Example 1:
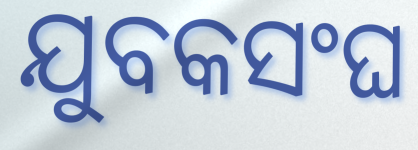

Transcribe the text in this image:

ଯୁବକସଂଘ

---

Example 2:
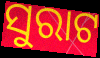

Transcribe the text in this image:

ସୁରାଟ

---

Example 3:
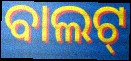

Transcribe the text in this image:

ବାଲଟ୍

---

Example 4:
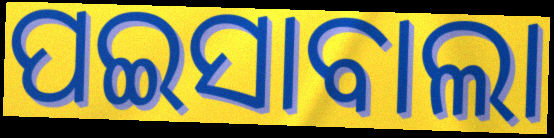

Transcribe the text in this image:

ପଇସାବାଲା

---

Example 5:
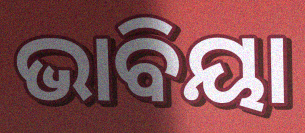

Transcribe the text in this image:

ଭାବିୟା